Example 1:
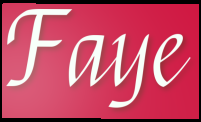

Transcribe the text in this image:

Faye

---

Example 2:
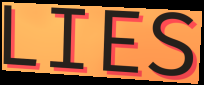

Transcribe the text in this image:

LIES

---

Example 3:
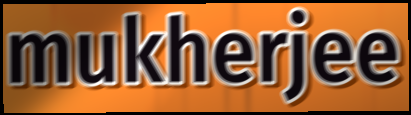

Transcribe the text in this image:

mukherjee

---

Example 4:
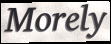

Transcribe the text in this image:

Morely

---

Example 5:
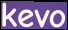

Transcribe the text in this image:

kevo